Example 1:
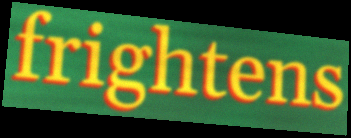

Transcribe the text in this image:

frightens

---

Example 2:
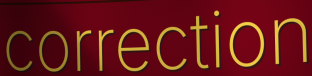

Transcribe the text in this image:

correction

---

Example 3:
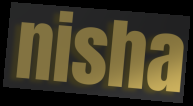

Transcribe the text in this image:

nisha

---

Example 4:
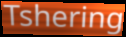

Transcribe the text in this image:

Tshering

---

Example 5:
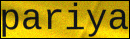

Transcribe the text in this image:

pariya